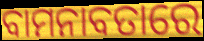
ବାମନାବତାରେ